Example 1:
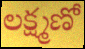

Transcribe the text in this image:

లక్ష్మణో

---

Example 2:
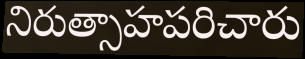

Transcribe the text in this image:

నిరుత్సాహపరిచారు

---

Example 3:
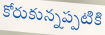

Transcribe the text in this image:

కోరుకున్నప్పటికి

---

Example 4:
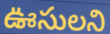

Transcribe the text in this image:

ఊసులని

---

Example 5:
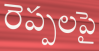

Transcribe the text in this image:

రెప్పలపై